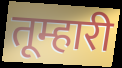
तूम्हारी